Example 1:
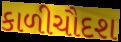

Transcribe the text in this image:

કાળીચૌદશ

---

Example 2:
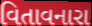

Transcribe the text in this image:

વિતાવનારા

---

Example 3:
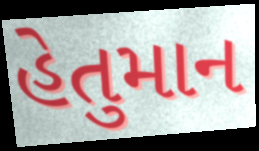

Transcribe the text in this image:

હેતુમાન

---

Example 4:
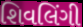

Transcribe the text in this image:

શિવલિંગી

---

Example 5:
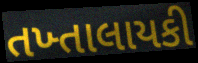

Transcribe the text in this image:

તખ્તાલાયકી